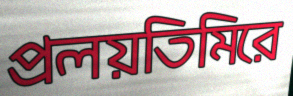
প্রলয়তিমিরে